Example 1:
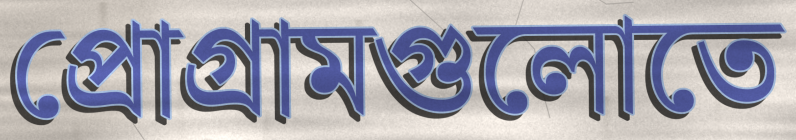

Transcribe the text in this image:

প্রোগ্রামগুলোতে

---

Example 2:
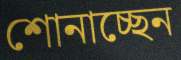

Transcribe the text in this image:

শোনাচ্ছেন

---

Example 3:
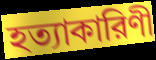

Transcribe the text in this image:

হত্যাকারিণী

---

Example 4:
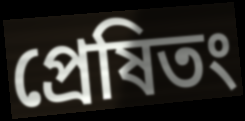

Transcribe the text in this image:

প্রেষিতং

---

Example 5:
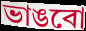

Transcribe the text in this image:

ভাঙবো